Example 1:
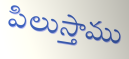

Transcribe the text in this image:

పిలుస్తాము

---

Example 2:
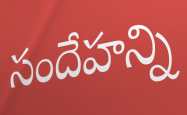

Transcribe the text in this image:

సందేహన్ని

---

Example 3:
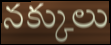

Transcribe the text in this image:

నక్కులు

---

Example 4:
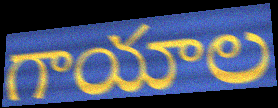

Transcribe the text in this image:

గాయాల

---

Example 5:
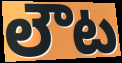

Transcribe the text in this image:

లౌట